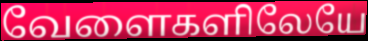
வேளைகளிலேயே